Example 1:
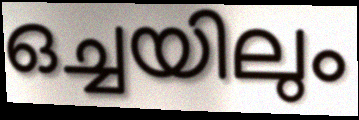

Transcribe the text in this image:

ഒച്ചയിലും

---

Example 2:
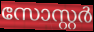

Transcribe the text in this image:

സോസ്റ്റർ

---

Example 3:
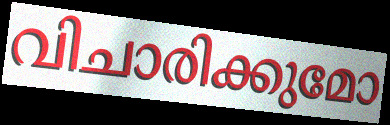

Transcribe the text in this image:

വിചാരിക്കുമോ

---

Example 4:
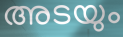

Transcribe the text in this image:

അടയും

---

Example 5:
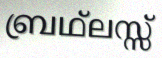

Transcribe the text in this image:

ബ്രഥ്ലസ്സ്